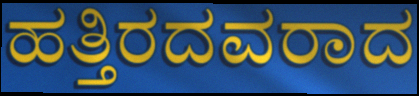
ಹತ್ತಿರದವರಾದ